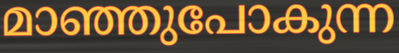
മാഞ്ഞുപോകുന്ന